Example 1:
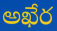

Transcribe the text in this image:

అఖేర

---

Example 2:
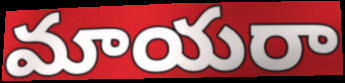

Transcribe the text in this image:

మాయరా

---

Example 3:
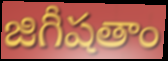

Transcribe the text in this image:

జిగీషతాం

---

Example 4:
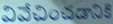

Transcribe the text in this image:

వివేచించడానికి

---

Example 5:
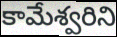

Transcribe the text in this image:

కామేశ్వరిని